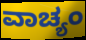
ವಾಚ್ಯಂ